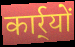
कार्र्यों